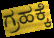
ಗ್ರಹಕ್ಕೆ